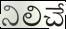
నిలిచే